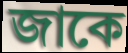
জাকে